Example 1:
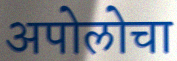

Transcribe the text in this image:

अपोलोचा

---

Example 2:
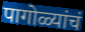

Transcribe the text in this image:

पागोळ्यांचं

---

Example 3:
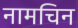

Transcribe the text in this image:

नामचिन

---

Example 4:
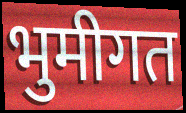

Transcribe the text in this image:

भुमीगत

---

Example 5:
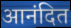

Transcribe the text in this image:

आनंदित